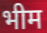
भीम